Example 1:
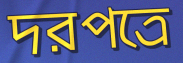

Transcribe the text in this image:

দরপত্রে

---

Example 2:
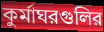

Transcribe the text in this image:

কুর্মাঘরগুলির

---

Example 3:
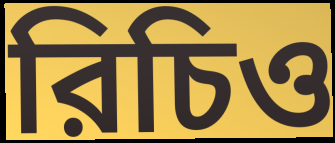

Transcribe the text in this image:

রিচিও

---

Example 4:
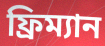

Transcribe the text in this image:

ফ্রিম্যান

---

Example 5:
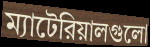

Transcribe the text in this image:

ম্যাটেরিয়ালগুলো